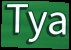
Tya